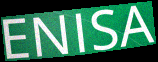
ENISA